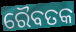
ରୈବତକ